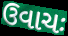
ઉવાચઃ